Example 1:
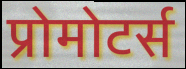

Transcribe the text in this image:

प्रोमोटर्स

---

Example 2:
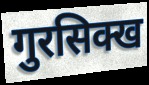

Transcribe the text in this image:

गुरसिक्ख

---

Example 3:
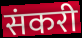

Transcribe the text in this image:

संकरी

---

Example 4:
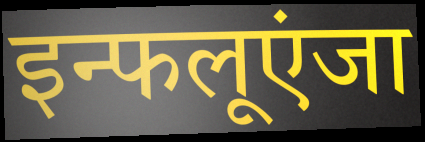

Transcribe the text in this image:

इन्फलूएंजा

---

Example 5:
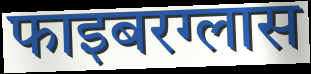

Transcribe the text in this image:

फाइबरग्लास